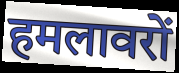
हमलावरों